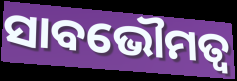
ସାବଭୌମତ୍ୱ